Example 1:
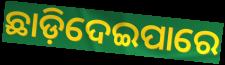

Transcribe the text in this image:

ଛାଡ଼ିଦେଇପାରେ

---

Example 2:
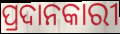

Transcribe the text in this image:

ପ୍ରଦାନକାରୀ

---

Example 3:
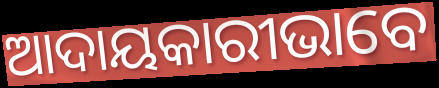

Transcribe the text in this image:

ଆଦାୟକାରୀଭାବେ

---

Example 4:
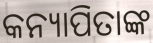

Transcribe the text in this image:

କନ୍ୟାପିତାଙ୍କ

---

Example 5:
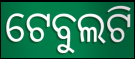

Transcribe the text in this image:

ଟେବୁଲଟି